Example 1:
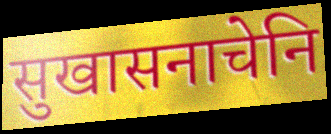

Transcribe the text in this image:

सुखासनाचेनि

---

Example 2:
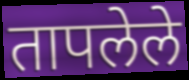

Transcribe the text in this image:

तापलेले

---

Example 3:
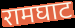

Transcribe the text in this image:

रामघाट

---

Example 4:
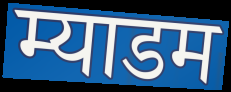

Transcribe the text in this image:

म्याडम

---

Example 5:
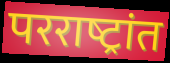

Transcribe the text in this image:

परराष्ट्रांत